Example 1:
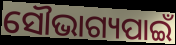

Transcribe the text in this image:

ସୌଭାଗ୍ୟପାଇଁ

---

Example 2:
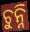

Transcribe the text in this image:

ଚୁନ୍ନି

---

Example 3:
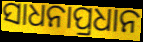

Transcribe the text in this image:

ସାଧନାପ୍ରଧାନ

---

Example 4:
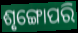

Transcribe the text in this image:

ଶୃଙ୍ଗୋପରି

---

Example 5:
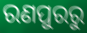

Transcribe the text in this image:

ରଣପୁରରୁ